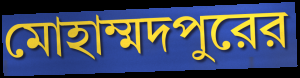
মোহাম্মদপুরের